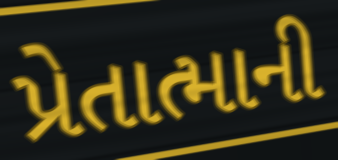
પ્રેતાત્માની